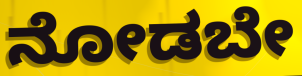
ನೋಡಬೇ